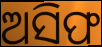
ଅସିଫ